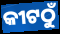
କୀଟଠୁଁ